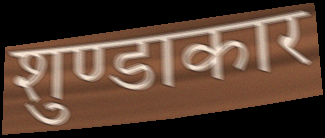
शुण्डाकार